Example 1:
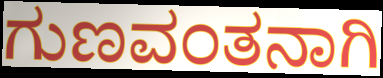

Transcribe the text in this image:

ಗುಣವಂತನಾಗಿ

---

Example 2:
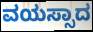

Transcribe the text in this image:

ವಯಸ್ಸಾದ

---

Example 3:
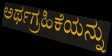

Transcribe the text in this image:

ಅರ್ಥಗ್ರಹಿಕೆಯನ್ನು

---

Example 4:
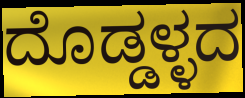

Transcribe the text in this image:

ದೊಡ್ಡಳ್ಳದ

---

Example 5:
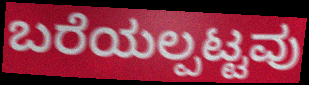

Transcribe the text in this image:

ಬರೆಯಲ್ಪಟ್ಟವು